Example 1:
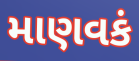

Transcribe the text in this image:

માણવકં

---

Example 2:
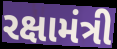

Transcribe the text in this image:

રક્ષામંત્રી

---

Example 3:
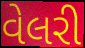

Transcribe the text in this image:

વેલરી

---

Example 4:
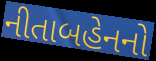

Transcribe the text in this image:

નીતાબહેનનો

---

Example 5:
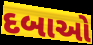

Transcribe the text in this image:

દબાઓ